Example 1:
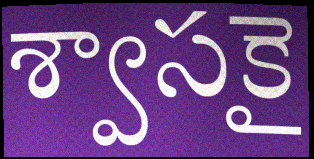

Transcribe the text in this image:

శ్వాసకై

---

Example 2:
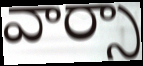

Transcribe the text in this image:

వార్సా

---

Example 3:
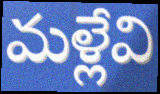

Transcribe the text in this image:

మళ్లేవి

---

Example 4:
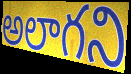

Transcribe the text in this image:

అలాగని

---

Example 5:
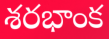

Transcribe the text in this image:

శరభాంక